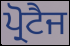
ਪ੍ਰੋਟੈਜ